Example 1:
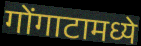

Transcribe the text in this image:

गोंगाटामध्ये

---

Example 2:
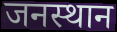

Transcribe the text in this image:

जनस्थान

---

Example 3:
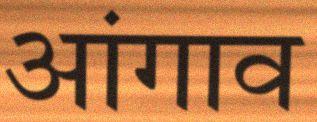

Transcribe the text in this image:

आंगाव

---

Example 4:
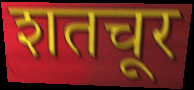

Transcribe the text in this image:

शतचूर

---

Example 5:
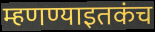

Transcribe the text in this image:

म्हणण्याइतकंच